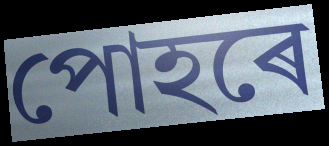
পোহৰে